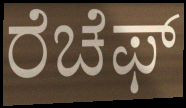
ರೆಚೆಫ್